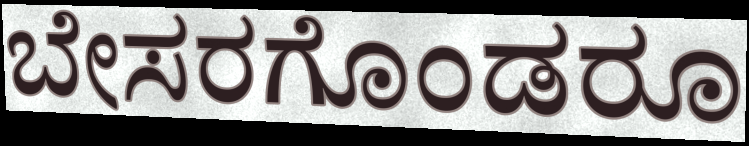
ಬೇಸರಗೊಂಡರೂ